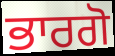
ਭਾਰਗੋ